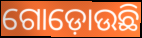
ଗୋଡ଼ୋଉଛି